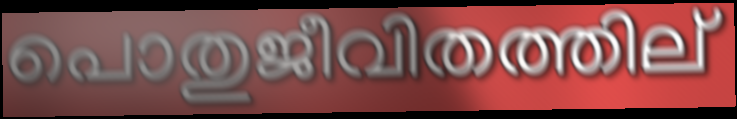
പൊതുജീവിതത്തില്